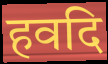
हवदि